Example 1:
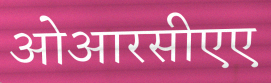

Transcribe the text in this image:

ओआरसीएए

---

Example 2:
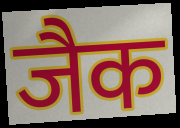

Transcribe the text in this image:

जैक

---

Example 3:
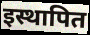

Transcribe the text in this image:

इस्थापित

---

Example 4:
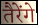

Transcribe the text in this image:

तैरेंगे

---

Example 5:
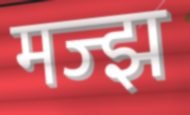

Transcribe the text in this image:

मज्झ